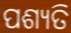
ପଶ୍ୟତି